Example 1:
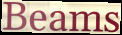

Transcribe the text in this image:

Beams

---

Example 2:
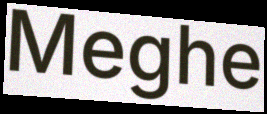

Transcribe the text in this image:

Meghe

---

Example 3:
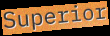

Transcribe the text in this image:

Superior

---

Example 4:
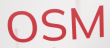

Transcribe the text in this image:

OSM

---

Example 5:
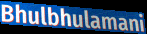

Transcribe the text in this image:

Bhulbhulamani